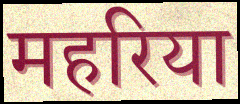
महरिया